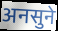
अनसुने